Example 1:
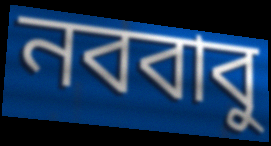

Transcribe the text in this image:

নববাবু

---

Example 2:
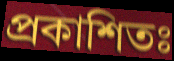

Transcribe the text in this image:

প্রকাশিতঃ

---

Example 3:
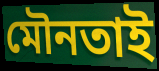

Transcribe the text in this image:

মৌনতাই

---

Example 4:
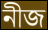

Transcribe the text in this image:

নীজ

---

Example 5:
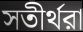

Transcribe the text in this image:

সতীর্থরা